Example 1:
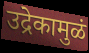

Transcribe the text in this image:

उद्रेकामुळं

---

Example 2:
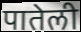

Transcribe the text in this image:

पातेली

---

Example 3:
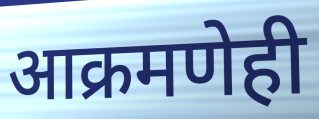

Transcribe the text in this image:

आक्रमणेही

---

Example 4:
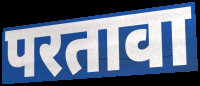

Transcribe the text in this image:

परतावा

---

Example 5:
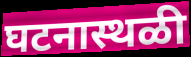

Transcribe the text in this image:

घटनास्थळी